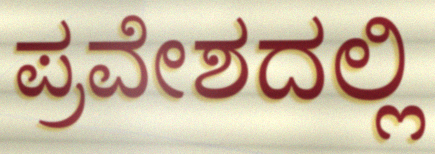
ಪ್ರವೇಶದಲ್ಲಿ